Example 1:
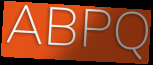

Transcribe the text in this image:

ABPQ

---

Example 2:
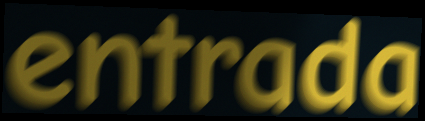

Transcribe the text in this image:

entrada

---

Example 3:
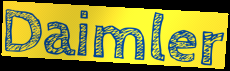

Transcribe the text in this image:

Daimler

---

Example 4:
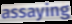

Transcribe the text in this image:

assaying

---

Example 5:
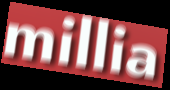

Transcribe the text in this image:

millia